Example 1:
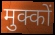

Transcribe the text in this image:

मुक्कों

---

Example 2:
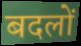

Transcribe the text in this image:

बदलों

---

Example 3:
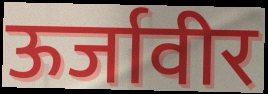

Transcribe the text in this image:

ऊर्जावीर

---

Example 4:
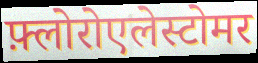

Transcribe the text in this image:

फ़्लोरोएलेस्टोमर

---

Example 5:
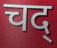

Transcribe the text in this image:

चद्